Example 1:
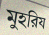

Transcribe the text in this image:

মুহরিয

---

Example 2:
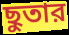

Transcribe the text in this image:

ছুতার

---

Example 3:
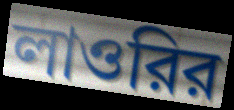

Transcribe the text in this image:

লাওরির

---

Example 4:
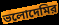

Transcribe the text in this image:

ভলোদেমির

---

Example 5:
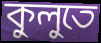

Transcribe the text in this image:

কুলুতে